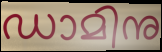
ഡാമിനു